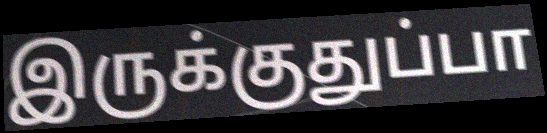
இருக்குதுப்பா